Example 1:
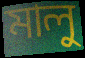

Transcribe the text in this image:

মালু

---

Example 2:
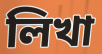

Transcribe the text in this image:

লিখা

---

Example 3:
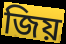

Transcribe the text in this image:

জিয়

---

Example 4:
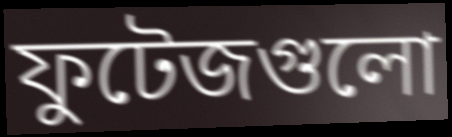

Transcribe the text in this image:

ফুটেজগুলো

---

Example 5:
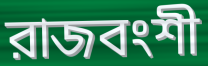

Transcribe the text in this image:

রাজবংশী